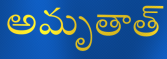
అమృతాత్